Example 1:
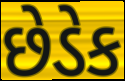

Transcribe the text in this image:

છેડેક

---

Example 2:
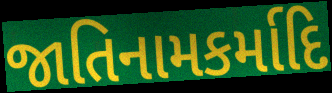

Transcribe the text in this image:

જાતિનામકર્માદિ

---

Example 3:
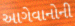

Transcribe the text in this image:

આગેવાનોની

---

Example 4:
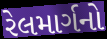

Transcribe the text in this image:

રેલમાર્ગનો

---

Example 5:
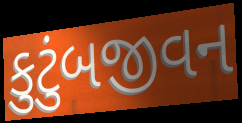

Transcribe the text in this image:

કુટુંબજીવન